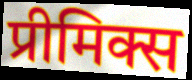
प्रीमिक्स